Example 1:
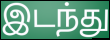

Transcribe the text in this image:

இடந்து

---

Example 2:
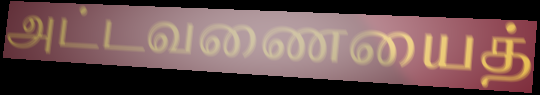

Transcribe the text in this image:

அட்டவணையைத்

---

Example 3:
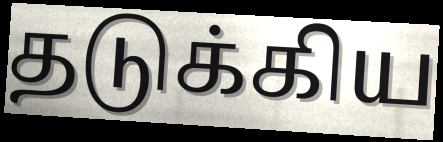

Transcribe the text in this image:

தடுக்கிய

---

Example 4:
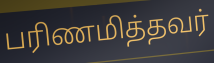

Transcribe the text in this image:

பரிணமித்தவர்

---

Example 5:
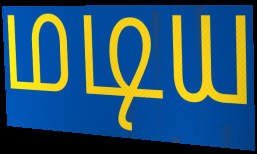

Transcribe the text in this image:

மடிய